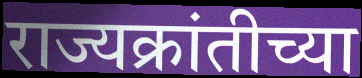
राज्यक्रांतीच्या